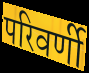
परिवर्णी